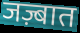
जज़्बात